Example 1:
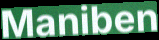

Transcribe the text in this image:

Maniben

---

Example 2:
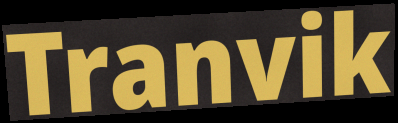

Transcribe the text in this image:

Tranvik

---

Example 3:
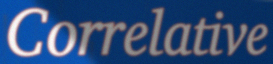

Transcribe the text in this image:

Correlative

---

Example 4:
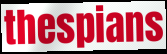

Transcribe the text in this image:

thespians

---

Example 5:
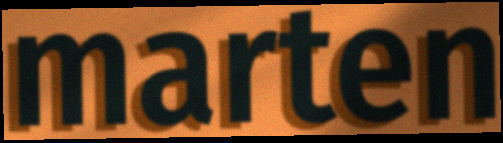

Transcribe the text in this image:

marten